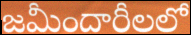
జమీందారీలలో